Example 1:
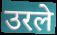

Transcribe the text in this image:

उरले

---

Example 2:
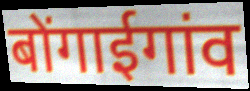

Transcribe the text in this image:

बोंगाईगांव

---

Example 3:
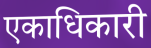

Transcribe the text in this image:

एकाधिकारी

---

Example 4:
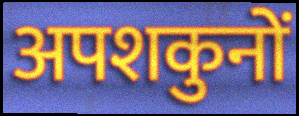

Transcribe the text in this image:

अपशकुनों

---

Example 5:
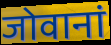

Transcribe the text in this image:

जोवानां